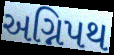
અગ્નિપથ